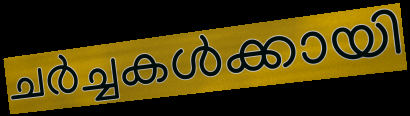
ചർച്ചകൾക്കായി